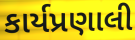
કાર્યપ્રણાલી